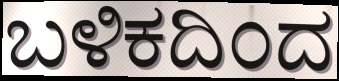
ಬಳಿಕದಿಂದ